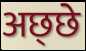
अछ्छे